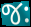
જઃ